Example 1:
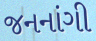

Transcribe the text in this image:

જનનાંગી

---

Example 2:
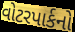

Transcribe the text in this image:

વોટરપાર્કનો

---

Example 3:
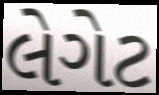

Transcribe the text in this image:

લેગેટ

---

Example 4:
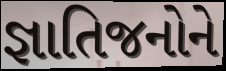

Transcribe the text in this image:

જ્ઞાતિજનોને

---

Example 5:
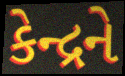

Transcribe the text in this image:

કેન્દ્રને